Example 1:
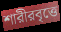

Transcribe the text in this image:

শারীরবৃত্তে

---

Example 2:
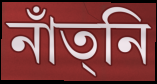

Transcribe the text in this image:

নাঁত্‌নি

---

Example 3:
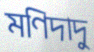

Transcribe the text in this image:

মণিদাদু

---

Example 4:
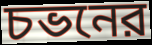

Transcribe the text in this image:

চভনের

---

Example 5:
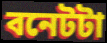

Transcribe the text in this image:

বনেটটা